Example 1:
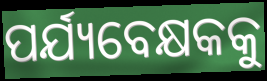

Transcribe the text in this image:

ପର୍ଯ୍ୟବେକ୍ଷକକୁ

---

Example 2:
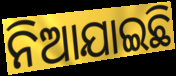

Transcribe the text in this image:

ନିଆଯାଇଛି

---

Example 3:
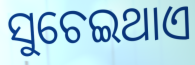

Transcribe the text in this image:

ସୁଚେଇଥାଏ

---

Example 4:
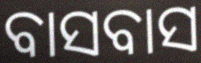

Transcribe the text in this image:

ବାସବାସ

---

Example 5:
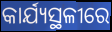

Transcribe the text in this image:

କାର୍ଯ୍ୟସ୍ଥଳୀରେ